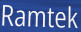
Ramtek